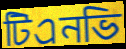
টিএনভি